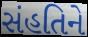
સંહતિને